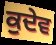
ਕੁਦੇਵ